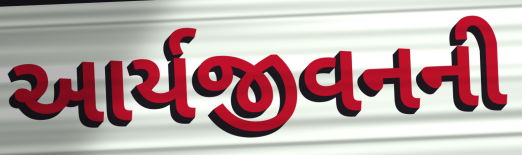
આર્યજીવનની